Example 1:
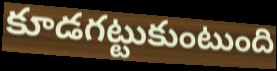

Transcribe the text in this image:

కూడగట్టుకుంటుంది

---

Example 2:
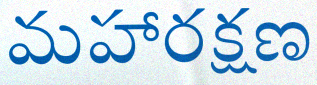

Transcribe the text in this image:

మహారక్షణ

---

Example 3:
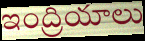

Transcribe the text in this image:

ఇంద్రియాలు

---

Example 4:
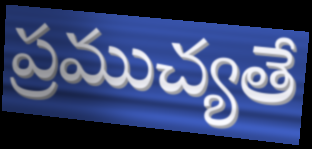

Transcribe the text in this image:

ప్రముచ్యతే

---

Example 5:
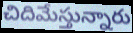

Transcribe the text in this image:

చిదిమేస్తున్నారు